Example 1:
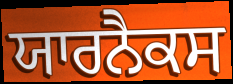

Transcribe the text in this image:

ਯਾਰਨੈਕਸ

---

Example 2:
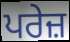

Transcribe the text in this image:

ਪਰੇਜ਼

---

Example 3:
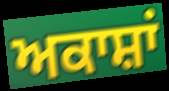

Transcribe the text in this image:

ਅਕਾਸ਼ਾਂ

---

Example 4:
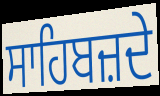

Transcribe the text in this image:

ਸਾਹਿਬਜ਼ਦੇ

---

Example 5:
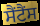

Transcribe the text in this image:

ਸੈਂਟੈਂਸ